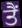
ਤੈਂ